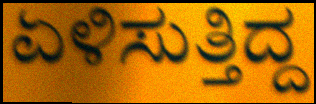
ಏಳಿಸುತ್ತಿದ್ದ